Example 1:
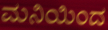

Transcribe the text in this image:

ಮನಿಯಿಂದ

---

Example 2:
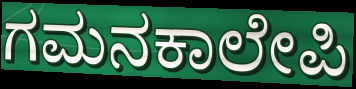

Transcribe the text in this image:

ಗಮನಕಾಲೇಪಿ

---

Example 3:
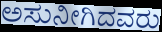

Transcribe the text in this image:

ಅಸುನೀಗಿದವರು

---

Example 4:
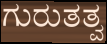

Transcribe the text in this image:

ಗುರುತತ್ವ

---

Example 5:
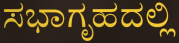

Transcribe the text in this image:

ಸಭಾಗೃಹದಲ್ಲಿ